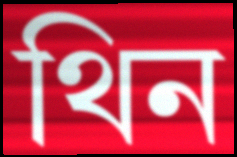
থিন